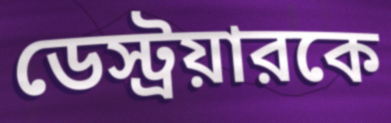
ডেস্ট্রয়ারকে